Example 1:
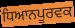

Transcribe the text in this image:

ਧਿਆਨਪੂਰਵਕ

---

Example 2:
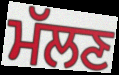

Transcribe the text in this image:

ਮੱਲਣ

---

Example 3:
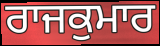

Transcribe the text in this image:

ਰਾਜਕੁਮਾਰ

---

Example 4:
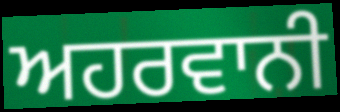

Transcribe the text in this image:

ਅਹਰਵਾਨੀ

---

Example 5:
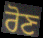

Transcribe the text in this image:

ਰੋਣ